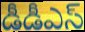
డీడీఎస్